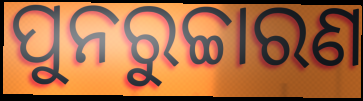
ପୁନରୁଚ୍ଚାରଣ